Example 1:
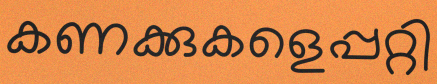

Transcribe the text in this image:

കണക്കുകളെപ്പറ്റി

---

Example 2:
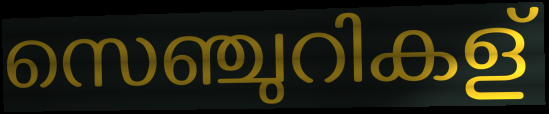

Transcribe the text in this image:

സെഞ്ചുറികള്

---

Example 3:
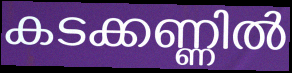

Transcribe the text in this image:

കടക്കണ്ണിൽ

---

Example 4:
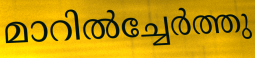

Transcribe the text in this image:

മാറിൽച്ചേർത്തു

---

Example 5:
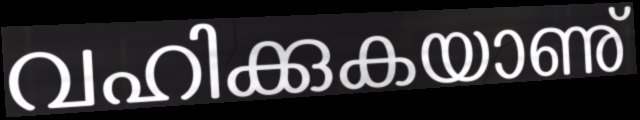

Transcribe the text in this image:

വഹിക്കുകയാണു്